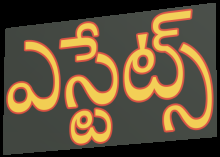
ఎస్టేట్స్